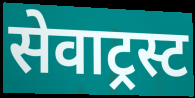
सेवाट्रस्ट